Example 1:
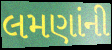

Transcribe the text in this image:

લમણાંની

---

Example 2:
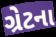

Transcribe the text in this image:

ગ્રેટના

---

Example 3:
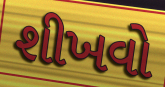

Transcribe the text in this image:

શીખવો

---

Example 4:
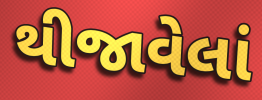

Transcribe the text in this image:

થીજાવેલાં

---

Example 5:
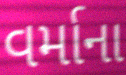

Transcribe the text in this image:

વર્માના